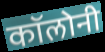
कॉलोनी